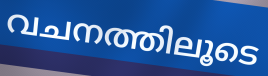
വചനത്തിലൂടെ